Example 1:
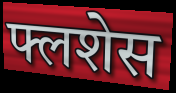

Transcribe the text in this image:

फ्लशेस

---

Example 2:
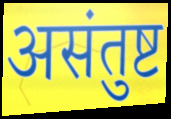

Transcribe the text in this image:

असंतुष्ट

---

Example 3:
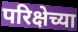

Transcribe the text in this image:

परिक्षेच्या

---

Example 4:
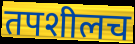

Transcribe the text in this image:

तपशीलच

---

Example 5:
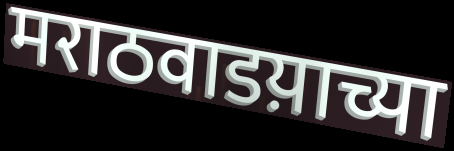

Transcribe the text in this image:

मराठवाडय़ाच्या